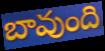
బావుంది